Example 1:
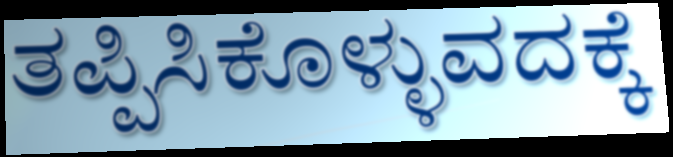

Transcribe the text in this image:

ತಪ್ಪಿಸಿಕೊಳ್ಳುವದಕ್ಕೆ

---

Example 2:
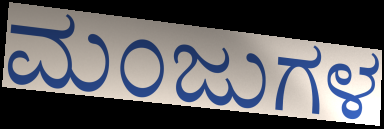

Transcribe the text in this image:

ಮಂಜುಗಳ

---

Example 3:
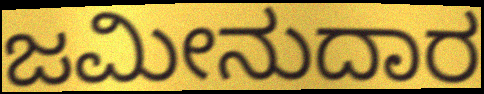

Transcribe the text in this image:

ಜಮೀನುದಾರ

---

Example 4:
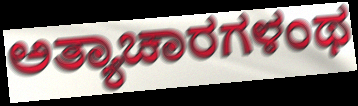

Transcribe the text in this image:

ಅತ್ಯಾಚಾರಗಳಂಥ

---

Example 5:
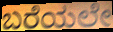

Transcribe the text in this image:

ಬರೆಯಲೇ